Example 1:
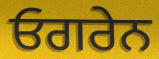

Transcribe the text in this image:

ਓਗਰੇਨ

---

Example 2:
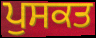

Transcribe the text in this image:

ਪੁਸਕਤ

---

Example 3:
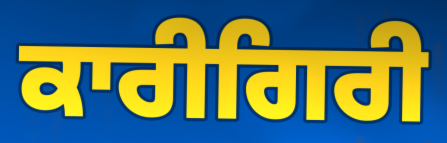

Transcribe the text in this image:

ਕਾਰੀਗਿਰੀ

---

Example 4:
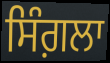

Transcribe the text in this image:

ਸਿੰਗ਼ਲਾ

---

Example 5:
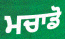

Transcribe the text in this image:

ਮਚਾਡੋ